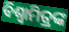
ବିଶ୍ଵାମିତ୍ରଙ୍କ